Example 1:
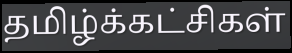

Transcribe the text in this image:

தமிழ்க்கட்சிகள்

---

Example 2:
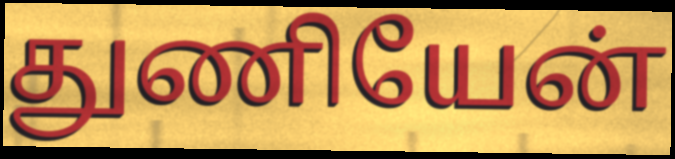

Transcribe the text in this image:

துணியேன்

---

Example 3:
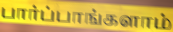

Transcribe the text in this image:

பார்ப்பாங்களாம்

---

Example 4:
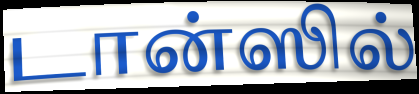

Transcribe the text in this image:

டான்ஸில்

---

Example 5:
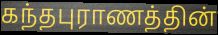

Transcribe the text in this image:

கந்தபுராணத்தின்